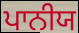
ਪਾਨੀਯ